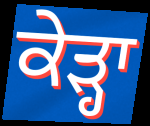
ਕੇੜ੍ਹਾ